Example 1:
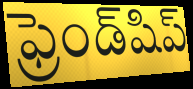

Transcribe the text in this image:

ఫ్రెండ్‌షిప్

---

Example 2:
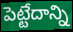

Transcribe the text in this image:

పెట్టేదాన్ని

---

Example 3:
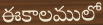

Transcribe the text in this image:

ఈకాలములో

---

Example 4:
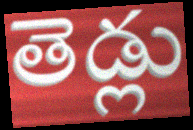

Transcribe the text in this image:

తెడ్లు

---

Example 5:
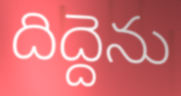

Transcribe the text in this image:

దిద్దెను